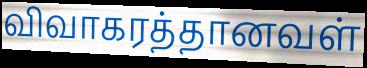
விவாகரத்தானவள்